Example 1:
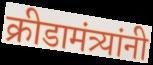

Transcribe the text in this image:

क्रीडामंत्र्यांनी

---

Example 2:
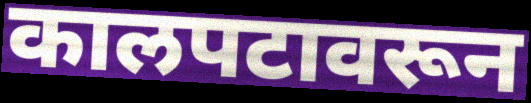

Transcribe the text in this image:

कालपटावरून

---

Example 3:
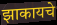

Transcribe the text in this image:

झाकायचे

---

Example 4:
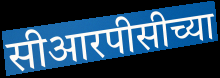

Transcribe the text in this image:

सीआरपीसीच्या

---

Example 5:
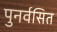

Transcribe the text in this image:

पुनर्वसित